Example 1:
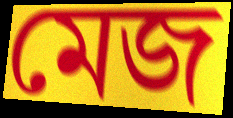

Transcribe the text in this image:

মেজ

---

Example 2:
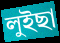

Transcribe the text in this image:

লুইছা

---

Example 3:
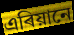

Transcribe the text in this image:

এৰিয়ানে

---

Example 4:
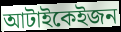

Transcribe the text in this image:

আটাইকেইজন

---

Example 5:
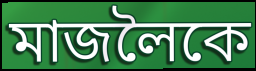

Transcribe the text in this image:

মাজলৈকে